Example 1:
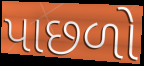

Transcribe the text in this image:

પાછળો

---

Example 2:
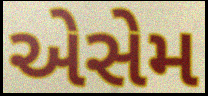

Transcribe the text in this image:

એસેમ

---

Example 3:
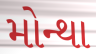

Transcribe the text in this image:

મોન્થા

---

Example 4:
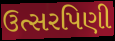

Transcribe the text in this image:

ઉત્સરપિણી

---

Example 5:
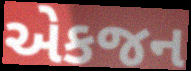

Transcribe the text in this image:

એકજન